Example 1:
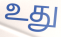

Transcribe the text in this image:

உது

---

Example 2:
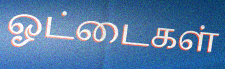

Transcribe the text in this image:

ஓட்டைகள்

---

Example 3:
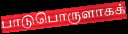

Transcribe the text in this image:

பாடுபொருளாகக்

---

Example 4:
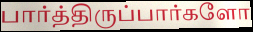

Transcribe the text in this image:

பார்த்திருப்பார்களோ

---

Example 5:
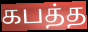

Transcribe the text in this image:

கபத்த